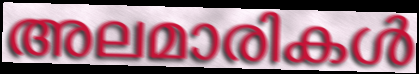
അലമാരികൾ